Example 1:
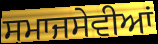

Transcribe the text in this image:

ਸਮਾਜਸੇਵੀਆਂ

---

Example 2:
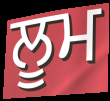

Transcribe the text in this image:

ਲੂਮ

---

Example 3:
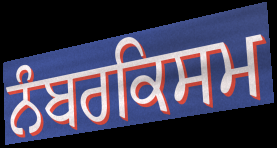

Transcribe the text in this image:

ਨੰਬਰਕਿਸਮ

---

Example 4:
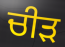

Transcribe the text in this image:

ਚੀੜ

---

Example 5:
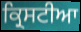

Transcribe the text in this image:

ਕ੍ਰਿਸਟੀਆ